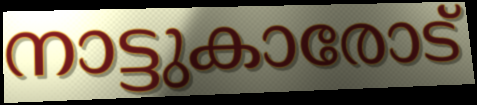
നാട്ടുകാരോട്